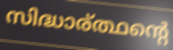
സിദ്ധാര്ത്ഥന്റെ